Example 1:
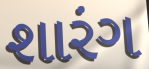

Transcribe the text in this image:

શારંગ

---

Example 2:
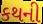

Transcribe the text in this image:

કથની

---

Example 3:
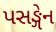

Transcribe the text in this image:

પસઙ્ગેન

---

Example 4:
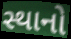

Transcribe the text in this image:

સ્થાનો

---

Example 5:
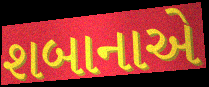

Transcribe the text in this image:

શબાનાએ